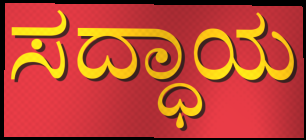
ಸದ್ಧಾಯ